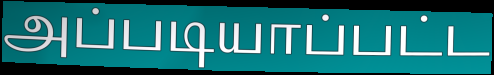
அப்படியாப்பட்ட